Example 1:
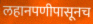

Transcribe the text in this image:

लहानपणीपासूनच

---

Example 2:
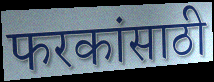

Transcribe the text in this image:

फरकांसाठी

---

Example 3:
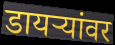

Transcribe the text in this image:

डायऱ्यांवर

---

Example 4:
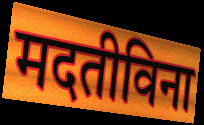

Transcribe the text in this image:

मदतीविना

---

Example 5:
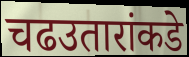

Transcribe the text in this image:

चढउतारांकडे